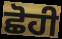
ਛੋਹੀ